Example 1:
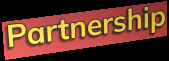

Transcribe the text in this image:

Partnership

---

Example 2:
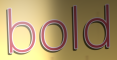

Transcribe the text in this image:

bold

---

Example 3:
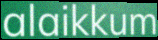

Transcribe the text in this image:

alaikkum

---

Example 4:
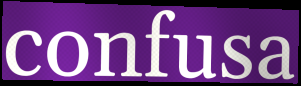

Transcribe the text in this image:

confusa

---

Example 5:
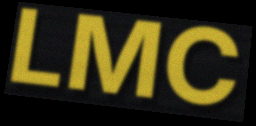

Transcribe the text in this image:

LMC